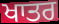
ਖਾਤਰ